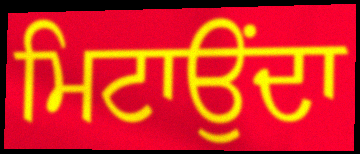
ਮਿਟਾਉਂਦਾ